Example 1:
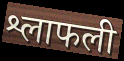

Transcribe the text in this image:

श्लाफली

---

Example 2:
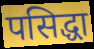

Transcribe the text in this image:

पसिद्धा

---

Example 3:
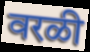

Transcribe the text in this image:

वरळी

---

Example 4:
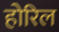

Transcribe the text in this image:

होरिल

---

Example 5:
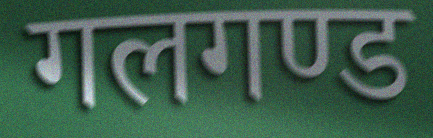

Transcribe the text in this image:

गलगण्ड